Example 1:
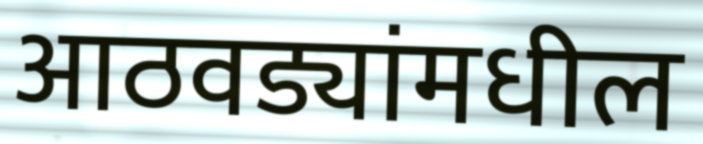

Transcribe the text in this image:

आठवड्यांमधील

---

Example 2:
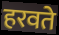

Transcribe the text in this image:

हरवते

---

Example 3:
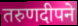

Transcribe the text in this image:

तरुणदीपने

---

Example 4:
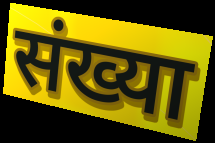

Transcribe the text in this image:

संख्या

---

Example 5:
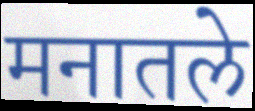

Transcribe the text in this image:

मनातले